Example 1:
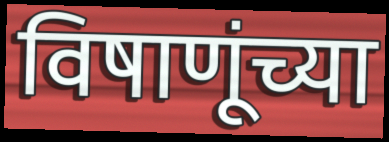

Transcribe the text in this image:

विषाणूंच्या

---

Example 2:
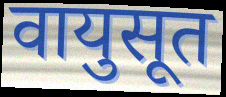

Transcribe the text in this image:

वायुसूत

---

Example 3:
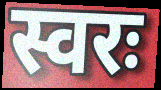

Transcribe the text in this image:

स्वरः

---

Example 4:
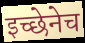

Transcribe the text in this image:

इच्छेनेच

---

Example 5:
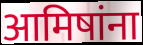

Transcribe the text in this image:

आमिषांना